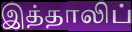
இத்தாலிப்